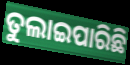
ତୁଲାଇପାରିଛି